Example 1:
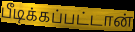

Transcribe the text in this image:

பீடிக்கப்பட்டான்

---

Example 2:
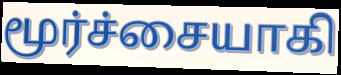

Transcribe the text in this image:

மூர்ச்சையாகி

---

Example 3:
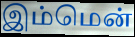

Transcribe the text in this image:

இம்மென்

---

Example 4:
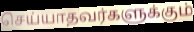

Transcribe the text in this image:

செய்யாதவர்களுக்கும்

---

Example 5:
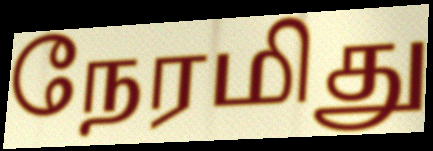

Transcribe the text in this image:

நேரமிது